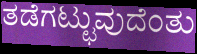
ತಡೆಗಟ್ಟುವುದೆಂತು